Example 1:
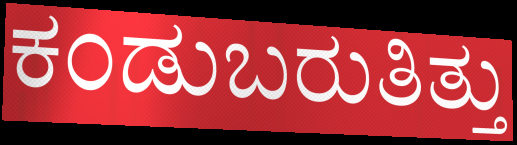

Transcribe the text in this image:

ಕಂಡುಬರುತಿತ್ತು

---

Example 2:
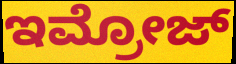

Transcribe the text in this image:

ಇಮ್ರೋಜ್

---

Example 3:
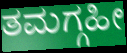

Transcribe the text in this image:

ತಮಗ್ಗಹೀ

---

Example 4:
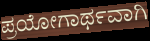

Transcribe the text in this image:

ಪ್ರಯೋಗಾರ್ಥವಾಗಿ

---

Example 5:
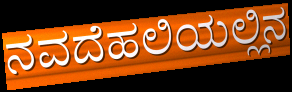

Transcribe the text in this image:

ನವದೆಹಲಿಯಲ್ಲಿನ